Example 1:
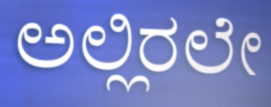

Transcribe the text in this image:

ಅಲ್ಲಿರಲೇ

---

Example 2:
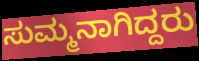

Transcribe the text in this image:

ಸುಮ್ಮನಾಗಿದ್ದರು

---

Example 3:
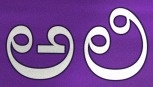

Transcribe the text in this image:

ಅಲಿ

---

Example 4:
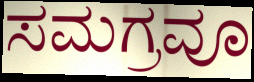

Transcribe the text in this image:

ಸಮಗ್ರವೂ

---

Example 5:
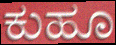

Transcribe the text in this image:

ಕುಹೂ